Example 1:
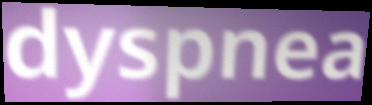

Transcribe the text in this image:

dyspnea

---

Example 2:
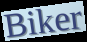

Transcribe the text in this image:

Biker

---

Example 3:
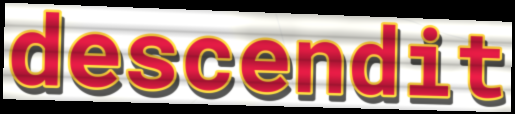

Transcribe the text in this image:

descendit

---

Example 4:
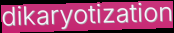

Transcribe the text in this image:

dikaryotization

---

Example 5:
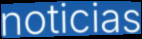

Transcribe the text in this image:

noticias